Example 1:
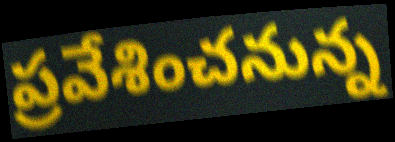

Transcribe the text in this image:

ప్రవేశించనున్న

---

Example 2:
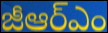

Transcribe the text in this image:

జీఆర్ఎం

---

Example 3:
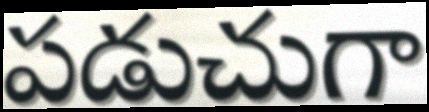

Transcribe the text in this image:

పడుచుగా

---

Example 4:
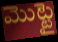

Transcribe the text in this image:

మొట్టై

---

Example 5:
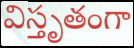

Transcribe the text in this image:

విస్తృతంగా